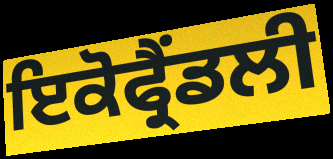
ਇਕੋਫ੍ਰੈਂਡਲੀ